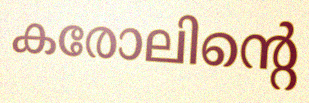
കരോലിന്റെ